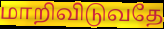
மாறிவிடுவதே